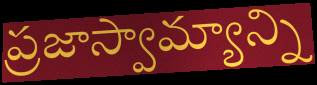
ప్రజాస్వామ్యాన్ని